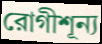
রোগীশূন্য